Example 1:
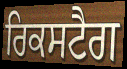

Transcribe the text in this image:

ਰਿਕਸਟੈਗ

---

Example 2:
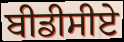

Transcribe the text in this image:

ਬੀਡੀਸੀਏ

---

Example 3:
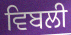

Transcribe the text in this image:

ਵਿਬਲੀ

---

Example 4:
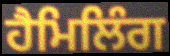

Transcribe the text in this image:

ਹੈਮਿਲਿੰਗ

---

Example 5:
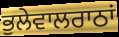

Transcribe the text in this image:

ਭੁਲੇਵਾਲਰਾਠਾਂ